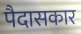
पैदासकार